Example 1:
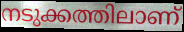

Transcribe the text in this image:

നടുക്കത്തിലാണ്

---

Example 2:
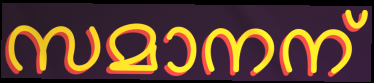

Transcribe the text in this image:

സമാനന്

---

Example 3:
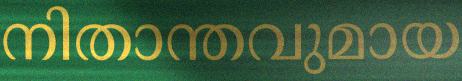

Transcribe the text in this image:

നിതാന്തവുമായ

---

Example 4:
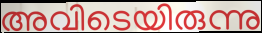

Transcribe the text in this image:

അവിടെയിരുന്നു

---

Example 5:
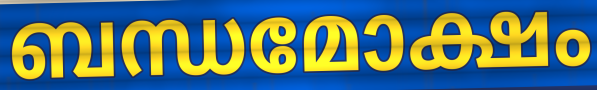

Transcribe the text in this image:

ബന്ധമോക്ഷം